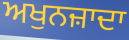
ਅਖੁਨਜ਼ਾਦਾ